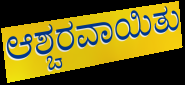
ಆಶ್ಚರವಾಯಿತು